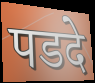
पडदे